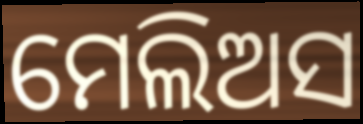
ମେଲିଅସ